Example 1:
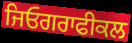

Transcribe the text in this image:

ਜਿਓਗਰਾਫੀਕਲ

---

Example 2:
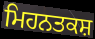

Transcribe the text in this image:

ਮਿਹਨਤਕਸ਼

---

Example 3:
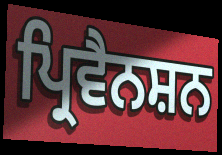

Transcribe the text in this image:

ਪ੍ਰਿਵੈਨਸ਼ਨ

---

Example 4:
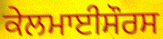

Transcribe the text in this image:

ਕੇਲਮਾਈਸੌਰਸ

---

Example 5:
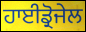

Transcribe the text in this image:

ਹਾਈਡ੍ਰੋਜੇਲ